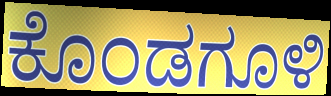
ಕೊಂಡಗೂಳಿ